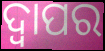
ଦ୍ୱାପର